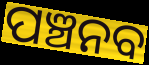
ପଞ୍ଚନବ